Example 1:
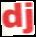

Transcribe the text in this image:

dj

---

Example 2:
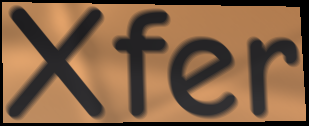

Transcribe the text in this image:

Xfer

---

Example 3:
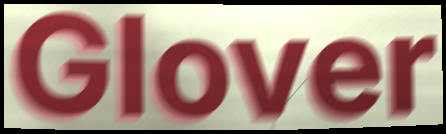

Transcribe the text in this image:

Glover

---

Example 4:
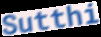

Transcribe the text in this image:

Sutthi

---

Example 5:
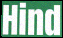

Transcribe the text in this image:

Hind